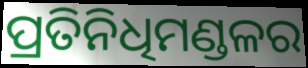
ପ୍ରତିନିଧିମଣ୍ଡଳର